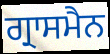
ਗ੍ਰਾਸਮੈਨ